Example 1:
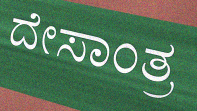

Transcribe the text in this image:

ದೇಸಾಂತ್ರ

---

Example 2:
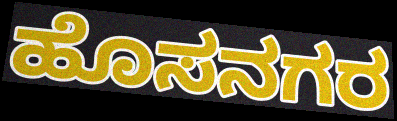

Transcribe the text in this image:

ಹೊಸನಗರ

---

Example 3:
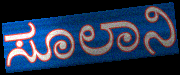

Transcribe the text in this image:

ಸೂಲಾನಿ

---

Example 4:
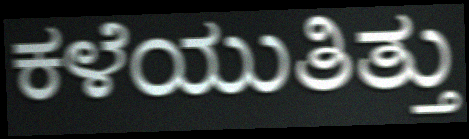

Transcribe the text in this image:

ಕಳೆಯುತಿತ್ತು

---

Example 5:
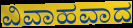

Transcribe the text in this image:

ವಿವಾಹವಾದ